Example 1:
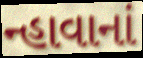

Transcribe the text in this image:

ન્હાવાનાં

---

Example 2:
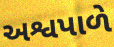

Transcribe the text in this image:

અશ્વપાળે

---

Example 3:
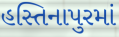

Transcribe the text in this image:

હસ્તિનાપુરમાં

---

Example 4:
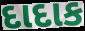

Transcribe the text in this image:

દાદાક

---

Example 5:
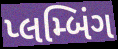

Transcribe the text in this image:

પ્લમ્બિંગ